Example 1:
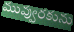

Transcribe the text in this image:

మువ్వురకును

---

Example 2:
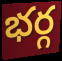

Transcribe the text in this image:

భర్గ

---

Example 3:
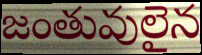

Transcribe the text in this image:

జంతువులైన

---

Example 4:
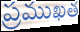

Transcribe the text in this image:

ప్రముఖత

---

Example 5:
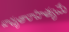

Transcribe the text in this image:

బాధ్యతారాహిత్యమే